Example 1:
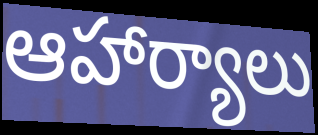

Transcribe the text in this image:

ఆహార్యాలు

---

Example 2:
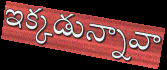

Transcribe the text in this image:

ఇక్కడున్నావా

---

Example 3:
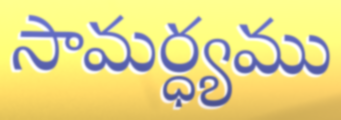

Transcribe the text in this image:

సామర్ధ్యము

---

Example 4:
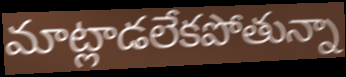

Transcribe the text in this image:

మాట్లాడలేకపోతున్నా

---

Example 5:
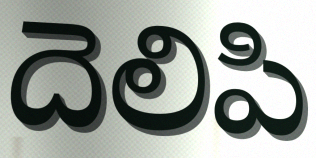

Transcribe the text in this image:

దెలిపి